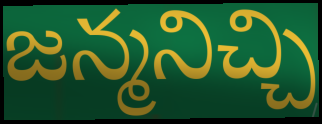
జన్మనిచ్చి